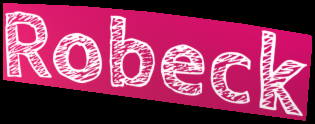
Robeck